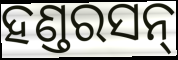
ହଣ୍ଡରସନ୍